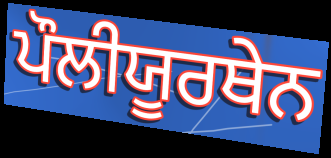
ਪੌਲੀਯੂਰਥੇਨ